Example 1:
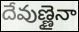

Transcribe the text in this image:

దేవుణ్ణైనా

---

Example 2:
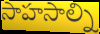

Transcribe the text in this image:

సాహసాల్ని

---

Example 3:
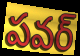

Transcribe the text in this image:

పవర్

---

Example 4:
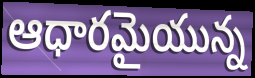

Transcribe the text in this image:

ఆధారమైయున్న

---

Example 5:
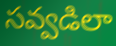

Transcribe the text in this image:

సవ్వడిలా